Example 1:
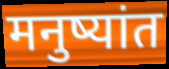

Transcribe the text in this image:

मनुष्यांत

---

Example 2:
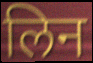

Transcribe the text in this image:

लिन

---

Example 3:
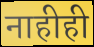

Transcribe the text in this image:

नाहीही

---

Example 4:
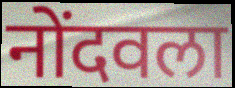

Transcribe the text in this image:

नोंदवला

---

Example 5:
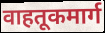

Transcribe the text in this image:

वाहतूकमार्ग